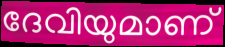
ദേവിയുമാണ്